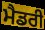
ਮੈਡਰੀ